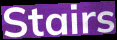
Stairs